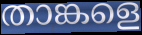
താങ്കളെ